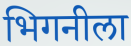
भिगनीला